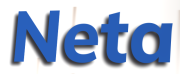
Neta